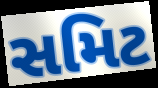
સમિટ